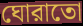
ঘোরাতো